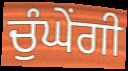
ਚੁੰਘੇਂਗੀ